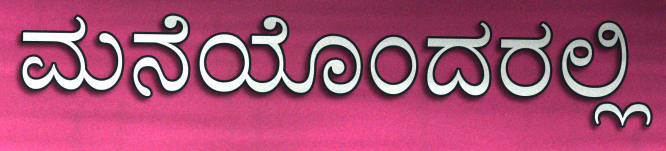
ಮನೆಯೊಂದರಲ್ಲಿ